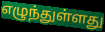
எழுந்துள்ளது